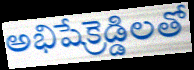
అభిషేక్రెడ్డిలతో